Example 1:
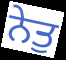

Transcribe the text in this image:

ਨੇਤੁ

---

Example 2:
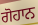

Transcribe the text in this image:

ਗੋਹਾਨ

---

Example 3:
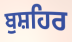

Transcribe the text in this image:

ਬੁਸ਼ਹਿਰ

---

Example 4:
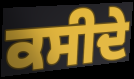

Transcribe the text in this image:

ਕਸੀਦੇ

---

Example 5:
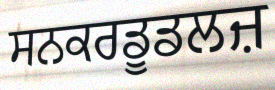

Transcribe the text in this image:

ਸਨਕਰਡੂਡਲਜ਼